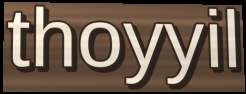
thoyyil